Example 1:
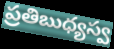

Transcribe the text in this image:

ప్రతిబుధ్యస్వ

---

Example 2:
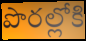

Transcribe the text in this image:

పొరల్లోకి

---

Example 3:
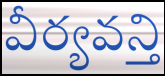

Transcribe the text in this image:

వీర్యవన్తి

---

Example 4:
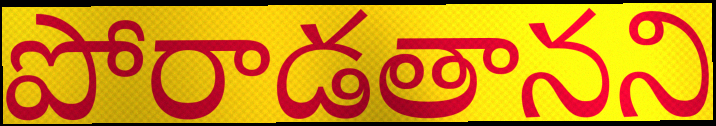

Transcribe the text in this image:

పోరాడతానని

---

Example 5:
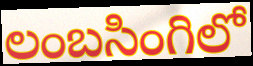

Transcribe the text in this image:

లంబసింగిలో